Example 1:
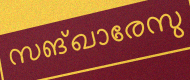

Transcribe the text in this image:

സങ്ഖാരേസു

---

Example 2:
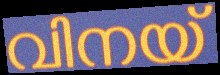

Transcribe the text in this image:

വിനയ്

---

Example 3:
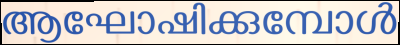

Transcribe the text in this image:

ആഘോഷിക്കുമ്പോൾ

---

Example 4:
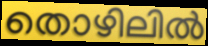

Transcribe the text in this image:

തൊഴിലിൽ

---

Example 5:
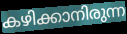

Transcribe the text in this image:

കഴിക്കാനിരുന്ന